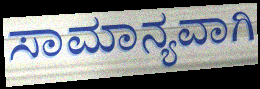
ಸಾಮಾನ್ಯವಾಗಿ